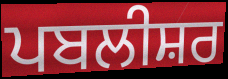
ਪਬਲੀਸ਼ਰ